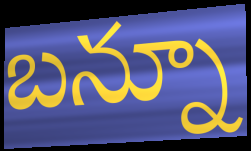
బన్నూ